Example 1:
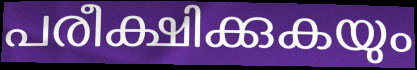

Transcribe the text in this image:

പരീക്ഷിക്കുകയും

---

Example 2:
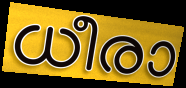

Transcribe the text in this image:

ധീരാ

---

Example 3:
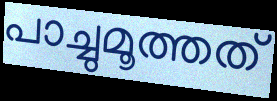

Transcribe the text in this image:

പാച്ചുമൂത്തത്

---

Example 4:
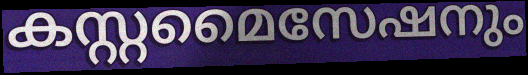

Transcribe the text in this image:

കസ്റ്റമൈസേഷനും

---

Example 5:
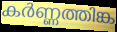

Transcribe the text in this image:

കർണ്ണത്തിങ്ക